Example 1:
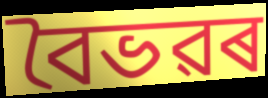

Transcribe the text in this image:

বৈভৱৰ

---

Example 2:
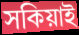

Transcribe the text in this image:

সকিয়াই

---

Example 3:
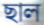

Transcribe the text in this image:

ছাল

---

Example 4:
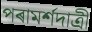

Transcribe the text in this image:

পৰামৰ্শদাত্ৰী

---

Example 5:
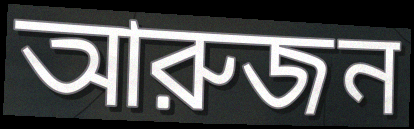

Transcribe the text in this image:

আৰুজন